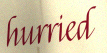
hurried